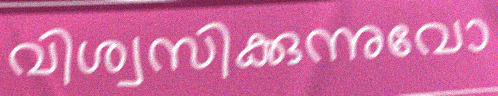
വിശ്വസിക്കുന്നുവോ